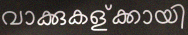
വാക്കുകള്ക്കായി